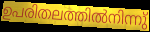
ഉപരിതലത്തിൽനിന്നു്